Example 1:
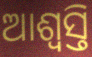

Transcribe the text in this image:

ଆଶ୍ଵସ୍ତି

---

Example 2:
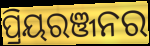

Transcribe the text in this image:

ପ୍ରିୟରଞ୍ଜନର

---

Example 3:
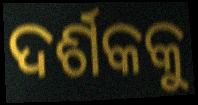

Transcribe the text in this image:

ଦର୍ଶକକୁ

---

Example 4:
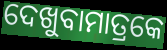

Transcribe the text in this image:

ଦେଖୁବାମାତ୍ରକେ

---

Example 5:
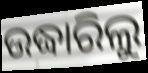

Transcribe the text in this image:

ଉଦ୍ଧାରିଲୁ